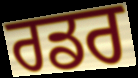
ਰਡਰ